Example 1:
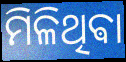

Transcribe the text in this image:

ମିଳିଥିଵା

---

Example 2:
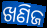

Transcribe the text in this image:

ଖଣିଜ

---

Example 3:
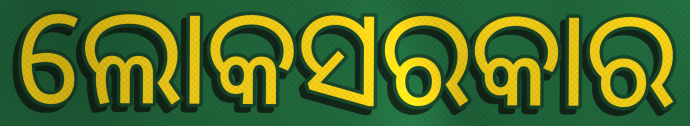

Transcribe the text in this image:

ଲୋକସରକାର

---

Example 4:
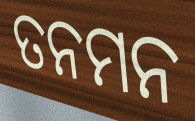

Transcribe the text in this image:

ତନମନ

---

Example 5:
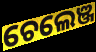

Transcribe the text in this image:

ଚେଲେଞ୍ଜ